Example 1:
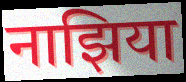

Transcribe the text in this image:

नाझिया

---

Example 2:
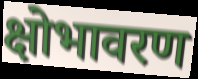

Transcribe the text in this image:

क्षोभावरण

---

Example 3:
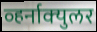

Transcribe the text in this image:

व्हर्नाक्युलर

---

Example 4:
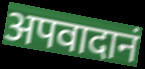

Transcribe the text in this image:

अपवादानं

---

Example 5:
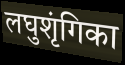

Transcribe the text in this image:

लघुशृंगिका